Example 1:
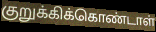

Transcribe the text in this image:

குறுக்கிக்கொண்டாள்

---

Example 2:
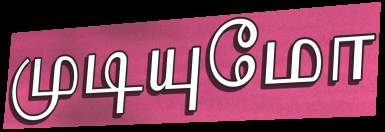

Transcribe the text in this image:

முடியுமோ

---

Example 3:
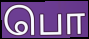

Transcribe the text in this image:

பொ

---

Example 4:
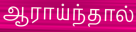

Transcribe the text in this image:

ஆராய்ந்தால்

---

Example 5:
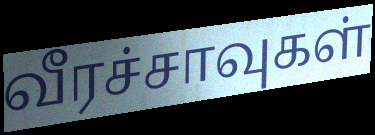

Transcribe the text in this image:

வீரச்சாவுகள்